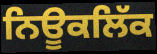
ਨਿਊਕਲਿੱਕ